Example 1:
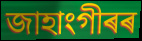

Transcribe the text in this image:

জাহাংগীৰৰ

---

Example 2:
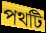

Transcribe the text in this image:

পথটি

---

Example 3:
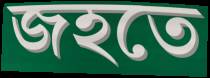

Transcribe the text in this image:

জহতে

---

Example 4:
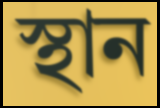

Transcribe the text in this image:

স্থান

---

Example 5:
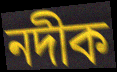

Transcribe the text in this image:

নদীক